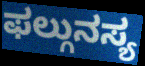
ಫಲ್ಗುನಸ್ಯ